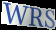
WRS